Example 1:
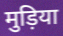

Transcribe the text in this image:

मुड़िया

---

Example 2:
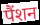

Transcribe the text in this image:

पैंशन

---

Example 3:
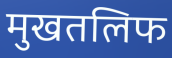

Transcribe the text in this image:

मुखतलिफ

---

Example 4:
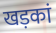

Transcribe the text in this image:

खड़कां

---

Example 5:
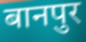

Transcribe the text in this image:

बानपुर